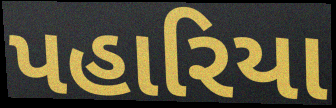
પહારિયા